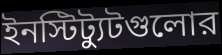
ইনস্টিট্যুটগুলোর